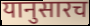
यानुसारच